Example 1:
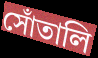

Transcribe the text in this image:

সোঁতালি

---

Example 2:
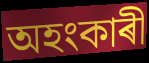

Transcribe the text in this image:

অহংকাৰী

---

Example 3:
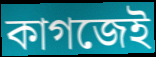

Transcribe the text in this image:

কাগজেই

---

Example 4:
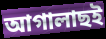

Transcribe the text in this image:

আগালাছই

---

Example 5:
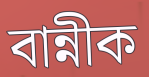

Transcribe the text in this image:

বান্নীক